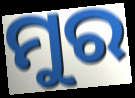
ମୁର